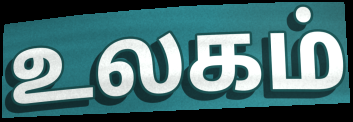
உலகம்